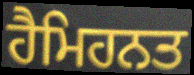
ਹੈਮਿਹਨਤ